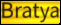
Bratya